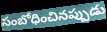
సంబోధించినప్పుడు